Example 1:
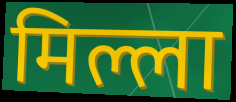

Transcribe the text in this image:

मिल्ला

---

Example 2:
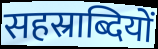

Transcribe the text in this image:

सहस्राब्दियों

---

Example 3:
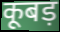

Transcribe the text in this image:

कूबड़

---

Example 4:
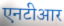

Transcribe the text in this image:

एनटीआर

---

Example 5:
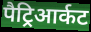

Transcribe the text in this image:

पैट्रिआर्कट